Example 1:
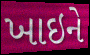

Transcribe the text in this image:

ખાઇને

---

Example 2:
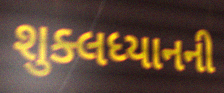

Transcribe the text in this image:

શુક્લધ્યાનની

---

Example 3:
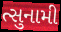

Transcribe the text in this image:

ત્સુનામી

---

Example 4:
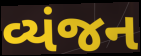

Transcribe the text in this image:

વ્યંજન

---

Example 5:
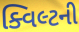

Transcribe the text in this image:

ક્વિલ્ટની